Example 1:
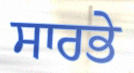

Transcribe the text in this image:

ਸਾਰਭੇ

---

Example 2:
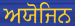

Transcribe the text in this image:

ਅਯੋਜਿਨ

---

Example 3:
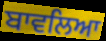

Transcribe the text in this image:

ਬਾਵਲਿਆ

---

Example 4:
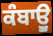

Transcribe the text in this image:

ਕੰਬਾਊੁ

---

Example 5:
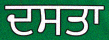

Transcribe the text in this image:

ਦਸਤਾ